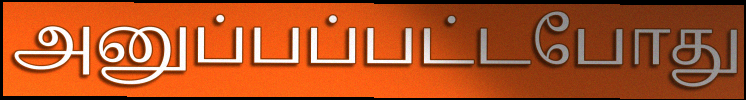
அனுப்பப்பட்டபோது